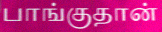
பாங்குதான்